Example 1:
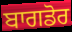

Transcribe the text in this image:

ਬਾਗਡੋਰ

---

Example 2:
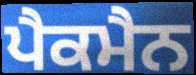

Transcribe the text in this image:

ਪੈਕਮੈਨ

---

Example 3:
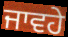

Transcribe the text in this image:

ਜਾਵਹੇ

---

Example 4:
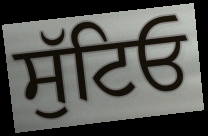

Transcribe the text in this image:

ਸੁੱਟਿਓ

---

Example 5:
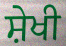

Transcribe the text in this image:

ਸ਼ੇਖੀ